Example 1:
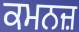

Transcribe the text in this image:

ਕਮਨਜ਼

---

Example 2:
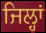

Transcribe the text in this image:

ਜਿਲ੍ਹਾਂ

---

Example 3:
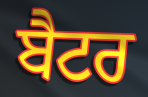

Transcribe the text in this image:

ਬੈਟਰ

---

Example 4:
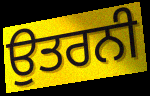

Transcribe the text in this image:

ਉਤਰਨੀ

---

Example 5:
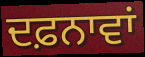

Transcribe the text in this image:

ਦਫ਼ਨਾਵਾਂ